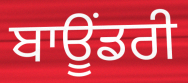
ਬਾਊਂਡਰੀ